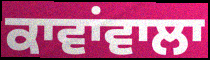
ਕਾਵਾਂਵਾਲਾ